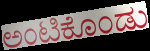
ಅಂಟಿಕೊಂಡು